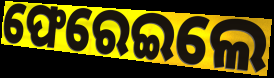
ଫେରେଇଲେ